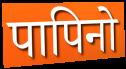
पापिनो